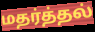
மதர்த்தல்